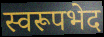
स्वरूपभेद